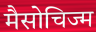
मैसोचिज्म